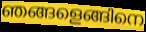
ഞങ്ങളെങ്ങിനെ